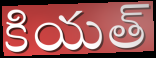
కియత్